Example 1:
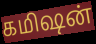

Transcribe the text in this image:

கமிஷன்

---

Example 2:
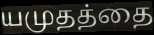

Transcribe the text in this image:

யமுதத்தை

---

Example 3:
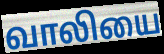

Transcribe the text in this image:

வாலியை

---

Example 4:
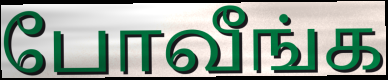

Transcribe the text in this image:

போவீங்க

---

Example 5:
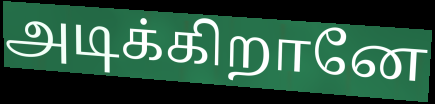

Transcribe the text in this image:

அடிக்கிறானே